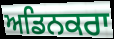
ਅਡਿਨਕਰਾ